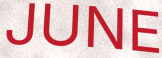
JUNE